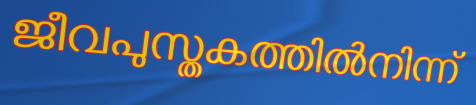
ജീവപുസ്തകത്തിൽനിന്ന്